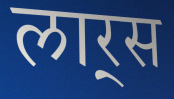
लार्स